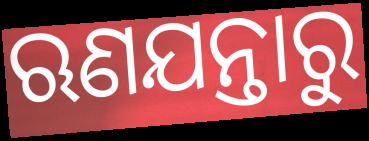
ଋଣଯନ୍ତାରୁ